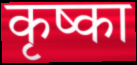
कृष्का